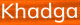
Khadga